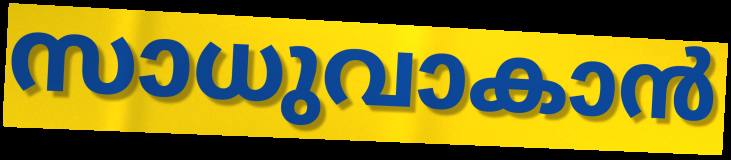
സാധുവാകാൻ